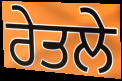
ਰੇਤਲੇ